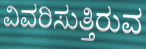
ವಿವರಿಸುತ್ತಿರುವ